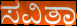
ಸವಿತಾ